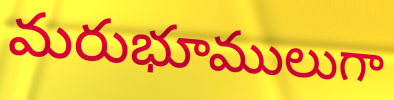
మరుభూములుగా